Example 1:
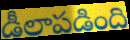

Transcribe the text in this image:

డీలాపడింది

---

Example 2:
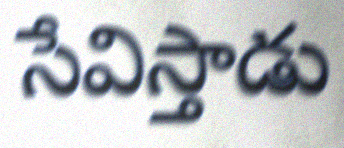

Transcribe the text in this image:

సేవిస్తాడు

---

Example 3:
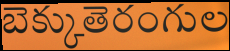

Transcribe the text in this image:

బెక్కుతెరంగుల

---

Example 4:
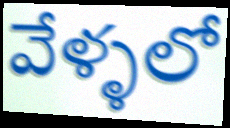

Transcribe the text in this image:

వేళ్ళలో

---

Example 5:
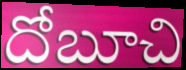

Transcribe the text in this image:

దోబూచి